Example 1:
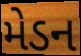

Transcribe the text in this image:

મેડન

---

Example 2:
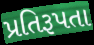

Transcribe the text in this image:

પ્રતિરૂપતા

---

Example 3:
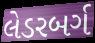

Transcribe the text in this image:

લેડરબર્ગ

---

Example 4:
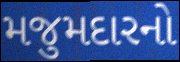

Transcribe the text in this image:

મજુમદારનો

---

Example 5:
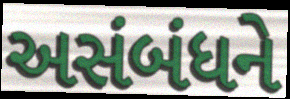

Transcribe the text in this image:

અસંબંધને